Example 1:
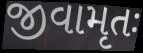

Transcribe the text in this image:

જીવામૃતઃ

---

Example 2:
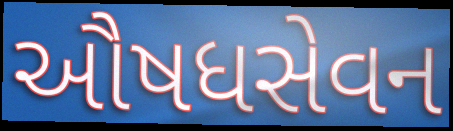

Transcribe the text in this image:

ઔષધસેવન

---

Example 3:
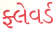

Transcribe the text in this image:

ફ્લેવર્ડ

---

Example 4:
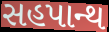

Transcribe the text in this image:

સહપાન્થ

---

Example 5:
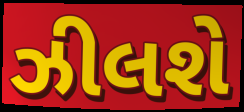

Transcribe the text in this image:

ઝીલશે